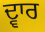
ਦ੍ਵਾਰ